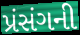
પ્રંસંગની